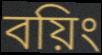
বয়িং